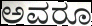
ಅವರೂ